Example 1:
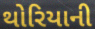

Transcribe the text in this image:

થોરિયાની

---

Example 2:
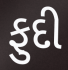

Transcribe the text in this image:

ફુદી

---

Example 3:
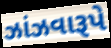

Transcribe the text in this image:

ઝાંઝવારૂપે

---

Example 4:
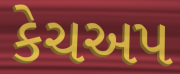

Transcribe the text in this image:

કેચઅપ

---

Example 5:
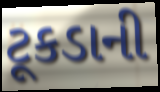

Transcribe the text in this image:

ટૂકડાની